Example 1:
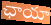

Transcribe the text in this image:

ఛాయా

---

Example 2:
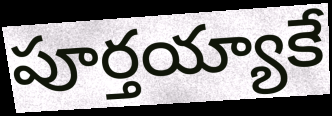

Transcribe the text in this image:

పూర్తయ్యాకే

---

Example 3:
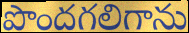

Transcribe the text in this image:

పొందగలిగాను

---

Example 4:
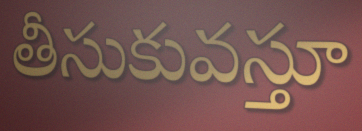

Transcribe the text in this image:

తీసుకువస్తూ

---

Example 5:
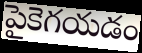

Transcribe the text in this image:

పైకెగయడం